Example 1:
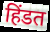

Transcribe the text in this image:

हिंडत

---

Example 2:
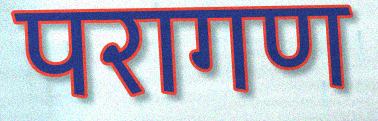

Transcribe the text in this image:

परागण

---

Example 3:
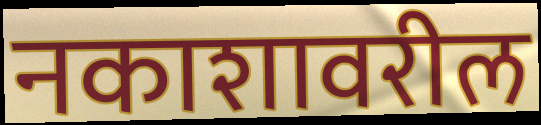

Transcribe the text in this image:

नकाशावरील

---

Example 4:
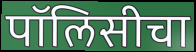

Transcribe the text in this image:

पॉलिसीचा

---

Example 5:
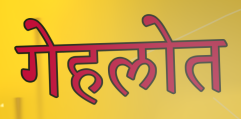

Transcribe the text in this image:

गेहलोत